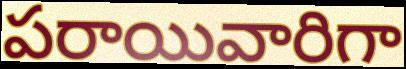
పరాయివారిగా